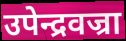
उपेन्द्रवज्रा